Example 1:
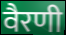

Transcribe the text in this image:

वैरणी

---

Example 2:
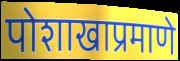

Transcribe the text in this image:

पोशाखाप्रमाणे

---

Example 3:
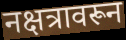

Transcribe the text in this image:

नक्षत्रावरून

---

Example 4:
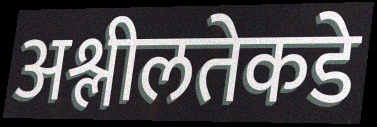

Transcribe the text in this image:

अश्लीलतेकडे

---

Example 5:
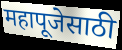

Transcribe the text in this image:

महापूजेसाठी